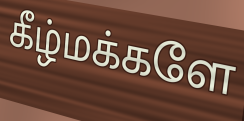
கீழ்மக்களே